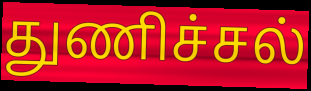
துணிச்சல்